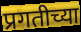
प्रगतीच्या